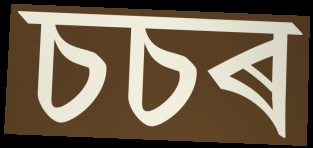
চচৰ